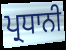
ਪ੍ਰਧਾਨੀ